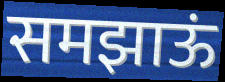
समझाऊं